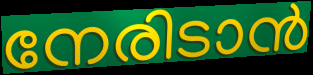
നേരിടാൻ